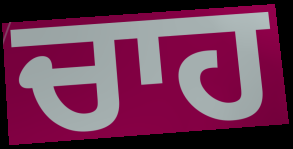
ਚਾਹ